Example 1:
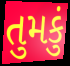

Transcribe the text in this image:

તુમકું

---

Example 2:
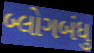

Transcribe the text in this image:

બ્લોગબંધુ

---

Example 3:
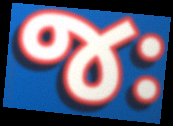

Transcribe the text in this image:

જઃ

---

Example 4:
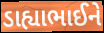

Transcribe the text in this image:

ડાહ્યાભાઈને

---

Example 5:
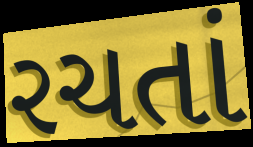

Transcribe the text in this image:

રચતાં